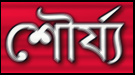
শৌৰ্য্য